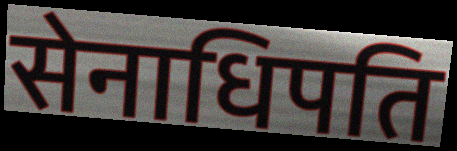
सेनाधिपति